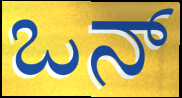
ಒನ್